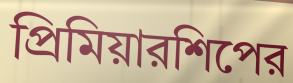
প্রিমিয়ারশিপের